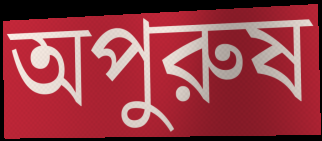
অপুরুষ